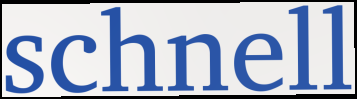
schnell